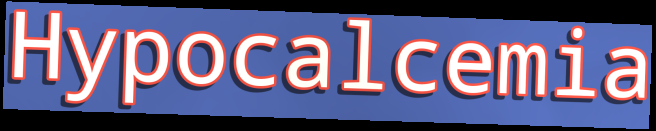
Hypocalcemia